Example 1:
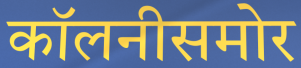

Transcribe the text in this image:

कॉलनीसमोर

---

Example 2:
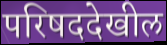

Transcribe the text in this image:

परिषददेखील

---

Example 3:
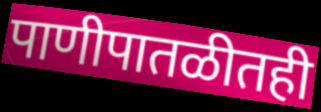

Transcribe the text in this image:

पाणीपातळीतही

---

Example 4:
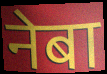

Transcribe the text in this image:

नेबा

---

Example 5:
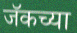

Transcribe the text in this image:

जॅकच्या